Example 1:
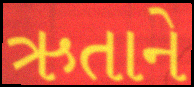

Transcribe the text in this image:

ઋતાને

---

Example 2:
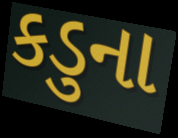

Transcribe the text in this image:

કડુના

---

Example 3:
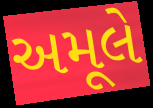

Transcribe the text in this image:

અમૂલે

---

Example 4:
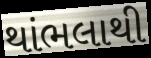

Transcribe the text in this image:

થાંભલાથી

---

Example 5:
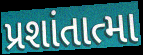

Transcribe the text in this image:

પ્રશાંતાત્મા